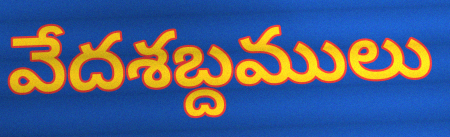
వేదశబ్దములు